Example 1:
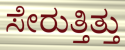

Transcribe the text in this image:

ಸೇರುತ್ತಿತ್ತು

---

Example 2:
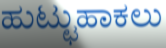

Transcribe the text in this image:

ಹುಟ್ಟುಹಾಕಲು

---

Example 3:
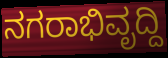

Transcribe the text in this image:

ನಗರಾಭಿವೃದ್ದಿ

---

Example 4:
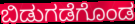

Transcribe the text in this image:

ಬಿಡುಗಡೆಗೊಂಡ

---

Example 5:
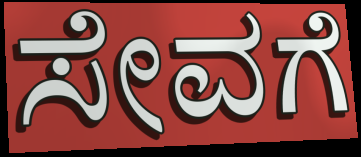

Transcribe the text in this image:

ಸೇವಗೆ